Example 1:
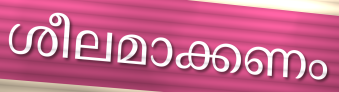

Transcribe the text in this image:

ശീലമാക്കണം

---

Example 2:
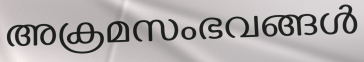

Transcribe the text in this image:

അക്രമസംഭവങ്ങൾ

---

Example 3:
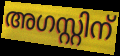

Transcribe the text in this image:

അഗസ്റ്റിന്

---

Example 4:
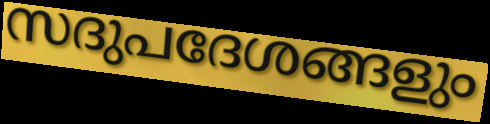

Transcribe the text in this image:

സദുപദേശങ്ങളും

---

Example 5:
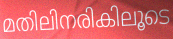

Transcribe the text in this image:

മതിലിനരികിലൂടെ